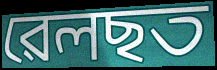
ৱেলছত